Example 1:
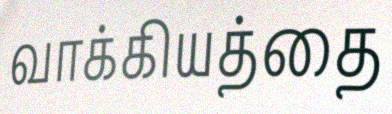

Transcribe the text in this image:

வாக்கியத்தை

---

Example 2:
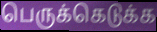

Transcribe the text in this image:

பெருக்கெடுக்க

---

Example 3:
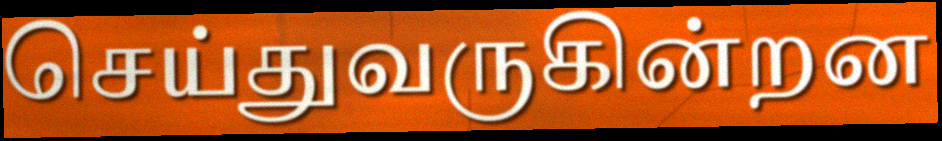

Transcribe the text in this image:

செய்துவருகின்றன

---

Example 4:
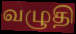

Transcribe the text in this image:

வழுதி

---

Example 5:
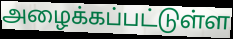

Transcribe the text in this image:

அழைக்கப்பட்டுள்ள